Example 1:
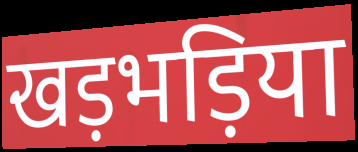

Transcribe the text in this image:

खड़भड़िया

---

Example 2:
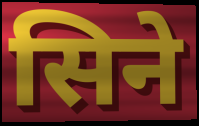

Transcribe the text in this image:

सिने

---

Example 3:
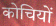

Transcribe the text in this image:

कोचियों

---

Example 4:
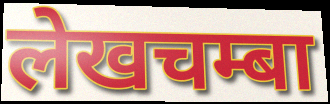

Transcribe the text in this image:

लेखचम्बा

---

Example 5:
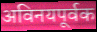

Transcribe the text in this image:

अविनयपूर्वक